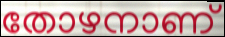
തോഴനാണ്